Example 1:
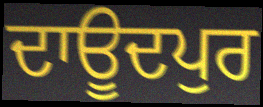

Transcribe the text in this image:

ਦਾਊਦਪੁਰ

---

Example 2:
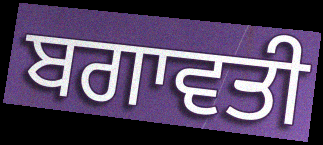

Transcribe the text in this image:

ਬਗਾਵਤੀ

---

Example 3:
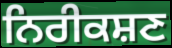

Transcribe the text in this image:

ਨਿਰੀਕਸ਼ਣ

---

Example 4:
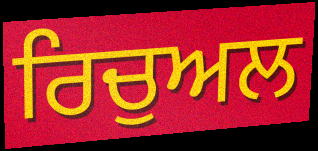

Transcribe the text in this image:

ਰਿਚੁਅਲ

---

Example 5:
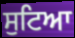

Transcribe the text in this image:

ਸੁਟਿਆ